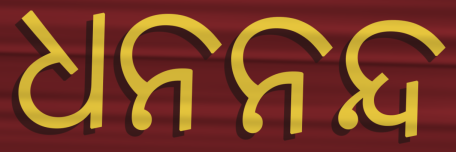
ଧନନନ୍ଦ